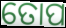
ତୋପ